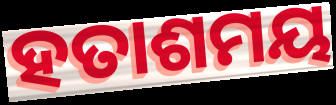
ହତାଶମୟ